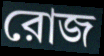
রোজ